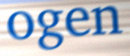
ogen